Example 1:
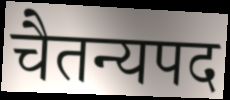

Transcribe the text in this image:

चैतन्यपद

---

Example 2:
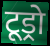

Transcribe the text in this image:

टूड्रो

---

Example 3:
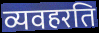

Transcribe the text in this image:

व्यवहरति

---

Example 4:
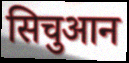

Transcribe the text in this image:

सिचुआन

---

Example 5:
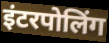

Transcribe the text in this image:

इंटरपोलिंग